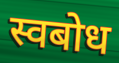
स्वबोध